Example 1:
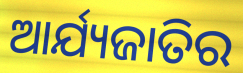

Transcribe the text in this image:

ଆର୍ଯ୍ୟଜାତିର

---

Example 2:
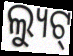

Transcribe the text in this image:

ଲ୍ୟୁଟ୍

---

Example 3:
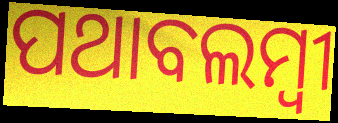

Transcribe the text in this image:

ପଥାବଲମ୍ବୀ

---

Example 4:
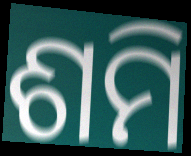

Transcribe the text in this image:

ଶମି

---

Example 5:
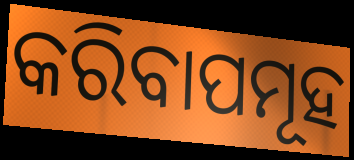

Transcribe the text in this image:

କରିବାପମୂହ